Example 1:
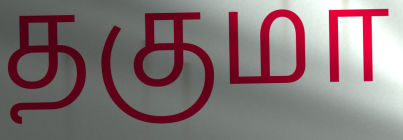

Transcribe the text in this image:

தகுமா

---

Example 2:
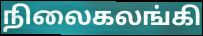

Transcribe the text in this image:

நிலைகலங்கி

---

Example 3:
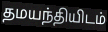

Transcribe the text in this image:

தமயந்தியிடம்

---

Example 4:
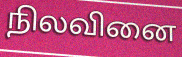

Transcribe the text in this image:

நிலவினை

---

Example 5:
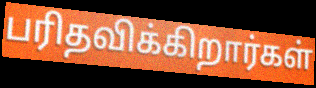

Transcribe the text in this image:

பரிதவிக்கிறார்கள்